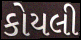
કોયલી